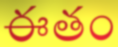
ఈతం